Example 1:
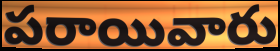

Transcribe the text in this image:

పరాయివారు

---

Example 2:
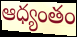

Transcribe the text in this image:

ఆధ్యంతం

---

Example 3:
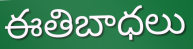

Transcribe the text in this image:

ఈతిబాధలు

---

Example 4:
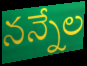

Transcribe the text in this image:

నన్నేల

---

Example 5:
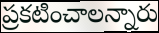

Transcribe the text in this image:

ప్రకటించాలన్నారు